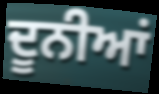
ਦੂਨੀਆਂ